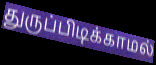
துருப்பிடிக்காமல்